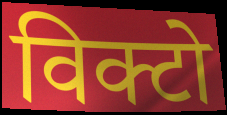
विक्टो